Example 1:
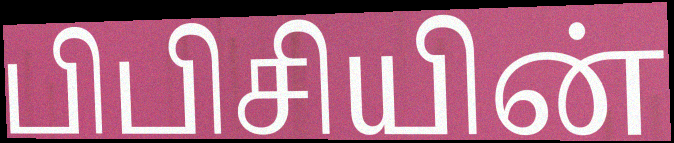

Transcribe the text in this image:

பிபிசியின்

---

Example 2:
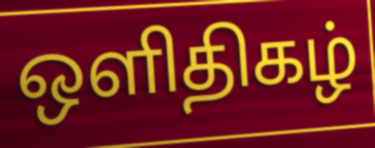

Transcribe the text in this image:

ஒளிதிகழ்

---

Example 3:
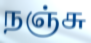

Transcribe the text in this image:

நஞ்சு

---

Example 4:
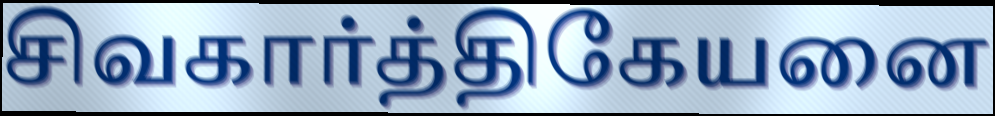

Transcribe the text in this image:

சிவகார்த்திகேயனை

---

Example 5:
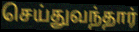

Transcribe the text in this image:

செய்துவந்தார்